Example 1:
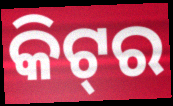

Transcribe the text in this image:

କିଟ୍‌ର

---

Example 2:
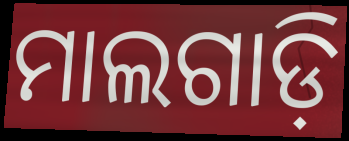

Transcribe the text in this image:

ମାଲଗାଡ଼ି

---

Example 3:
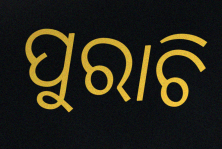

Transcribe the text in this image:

ପୁରାଚି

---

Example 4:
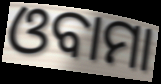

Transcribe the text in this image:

ଓବାମା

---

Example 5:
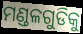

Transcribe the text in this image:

ମଣ୍ଡଳଗୁଡିକୁ